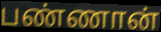
பண்ணான்